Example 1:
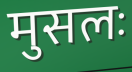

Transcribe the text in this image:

मुसलः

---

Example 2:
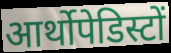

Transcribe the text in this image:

आर्थोपेडिस्टों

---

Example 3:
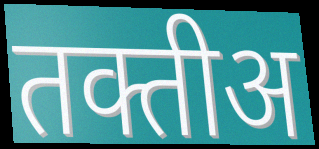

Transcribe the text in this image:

तक्तीअ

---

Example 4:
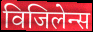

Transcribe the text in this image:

विजिलेन्स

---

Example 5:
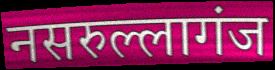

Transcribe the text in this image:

नसरुल्लागंज